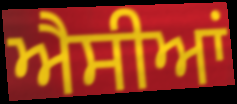
ਐਸੀਆਂ